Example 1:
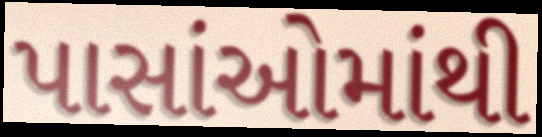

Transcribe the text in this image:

પાસાંઓમાંથી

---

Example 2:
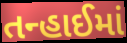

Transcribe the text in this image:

તન્હાઈમાં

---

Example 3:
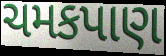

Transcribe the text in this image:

ચમકપાણ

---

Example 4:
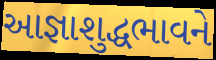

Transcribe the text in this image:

આજ્ઞાશુદ્ધભાવને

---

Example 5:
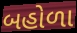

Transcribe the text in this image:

બહોળા